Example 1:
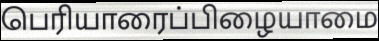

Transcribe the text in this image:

பெரியாரைப்பிழையாமை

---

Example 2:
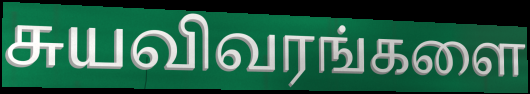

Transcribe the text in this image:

சுயவிவரங்களை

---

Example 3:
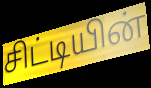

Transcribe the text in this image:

சிட்டியின்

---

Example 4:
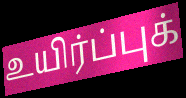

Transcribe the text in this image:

உயிர்ப்புக்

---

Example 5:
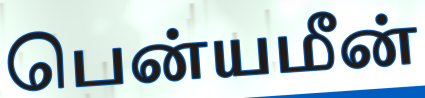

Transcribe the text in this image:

பென்யமீன்